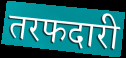
तरफदारी